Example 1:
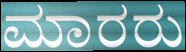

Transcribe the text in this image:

ಮಾರರು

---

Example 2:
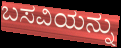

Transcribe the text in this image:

ಬಸವಿಯನ್ನು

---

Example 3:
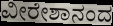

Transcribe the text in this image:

ವೀರೇಶಾನಂದ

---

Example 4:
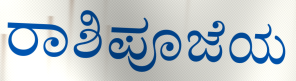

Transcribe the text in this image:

ರಾಶಿಪೂಜೆಯ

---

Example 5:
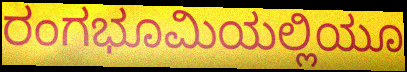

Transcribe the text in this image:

ರಂಗಭೂಮಿಯಲ್ಲಿಯೂ